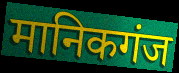
मानिकगंज